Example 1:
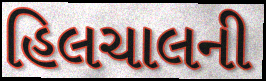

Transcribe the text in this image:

હિલચાલની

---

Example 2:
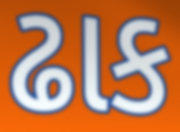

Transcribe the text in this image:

ઢાક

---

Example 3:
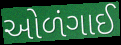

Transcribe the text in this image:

ઓળંગાઈ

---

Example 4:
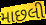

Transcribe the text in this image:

માછલી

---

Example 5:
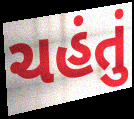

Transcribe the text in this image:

ચહંતું